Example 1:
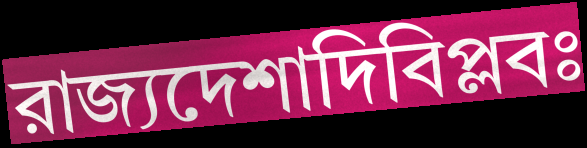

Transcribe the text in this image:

রাজ্যদেশাদিবিপ্লবঃ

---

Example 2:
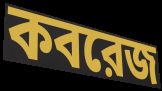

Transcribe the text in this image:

কবরেজ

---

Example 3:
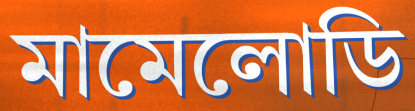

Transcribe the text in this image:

মামেলোডি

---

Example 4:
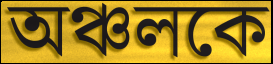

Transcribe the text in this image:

অঞ্চলকে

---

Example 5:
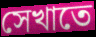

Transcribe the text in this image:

সেখাতে